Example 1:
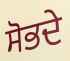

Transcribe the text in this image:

ਸੋਭਦੇ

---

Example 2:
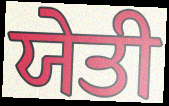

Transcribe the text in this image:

ਯੇਤੀ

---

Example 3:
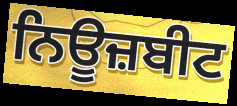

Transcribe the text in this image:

ਨਿਊਜ਼ਬੀਟ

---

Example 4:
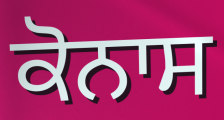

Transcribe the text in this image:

ਕੋਨਾਸ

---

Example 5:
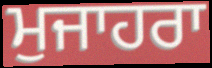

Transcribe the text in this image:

ਮੁਜਾਹਰਾ